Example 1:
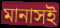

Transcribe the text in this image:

মানাসই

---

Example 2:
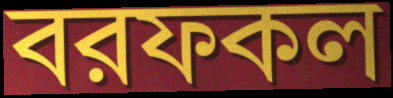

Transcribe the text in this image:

বরফকল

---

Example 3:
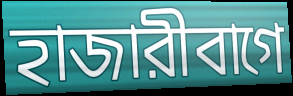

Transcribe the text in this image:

হাজারীবাগে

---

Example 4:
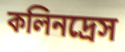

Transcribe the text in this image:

কলিনদ্রেস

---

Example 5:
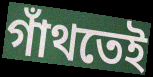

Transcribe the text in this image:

গাঁথতেই